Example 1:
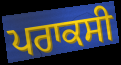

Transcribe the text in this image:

ਪਰਾਕਸੀ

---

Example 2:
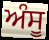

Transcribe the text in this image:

ਅੰਸੂ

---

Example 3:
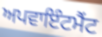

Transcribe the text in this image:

ਅਪਵਾਇੰਟਮੈਂਟ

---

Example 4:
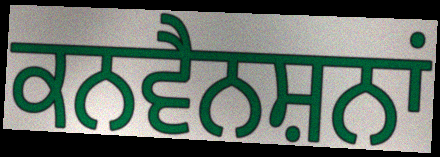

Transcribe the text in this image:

ਕਨਵੈਨਸ਼ਨਾਂ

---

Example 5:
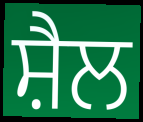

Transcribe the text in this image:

ਸ਼ੈਲ